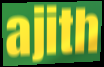
ajith